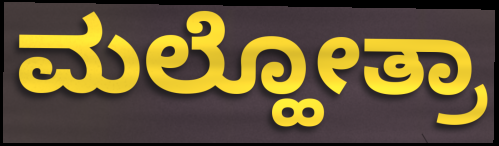
ಮಲ್ಹೋತ್ರಾ